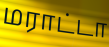
மராட்டா